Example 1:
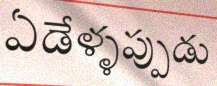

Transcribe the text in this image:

ఏడేళ్ళప్పుడు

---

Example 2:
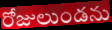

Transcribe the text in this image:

రోజులుండను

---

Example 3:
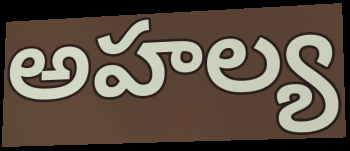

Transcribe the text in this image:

అహల్య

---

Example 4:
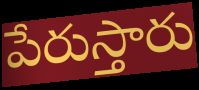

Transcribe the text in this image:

పేరుస్తారు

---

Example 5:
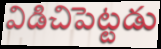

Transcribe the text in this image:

విడిచిపెట్టడు